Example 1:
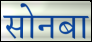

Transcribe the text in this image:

सोनबा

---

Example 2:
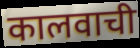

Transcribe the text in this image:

कालवाची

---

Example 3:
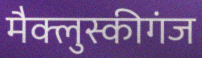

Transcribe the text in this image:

मैक्लुस्कीगंज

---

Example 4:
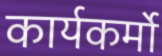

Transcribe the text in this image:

कार्यकर्मो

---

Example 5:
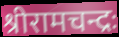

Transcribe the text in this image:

श्रीरामचन्द्रः